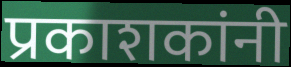
प्रकाशकांनी